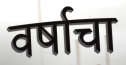
वर्षाचा